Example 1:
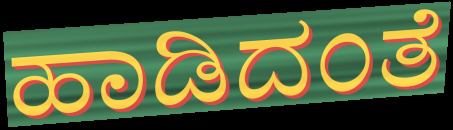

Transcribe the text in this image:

ಹಾಡಿದಂತೆ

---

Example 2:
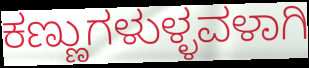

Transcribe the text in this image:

ಕಣ್ಣುಗಳುಳ್ಳವಳಾಗಿ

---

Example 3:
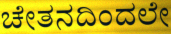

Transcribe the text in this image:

ಚೇತನದಿಂದಲೇ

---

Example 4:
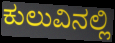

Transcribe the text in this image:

ಕುಲುವಿನಲ್ಲಿ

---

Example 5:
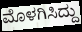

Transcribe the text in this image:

ಮೊಳಗಿಸಿದ್ದು